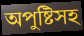
অপুষ্টিসহ